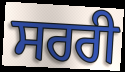
ਸਰਰੀ